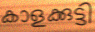
കാളക്കുട്ടി